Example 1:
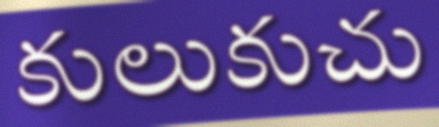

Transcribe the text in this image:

కులుకుచు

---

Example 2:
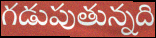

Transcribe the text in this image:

గడుపుతున్నది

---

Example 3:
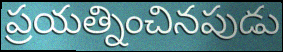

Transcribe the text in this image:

ప్రయత్నించినపుడు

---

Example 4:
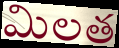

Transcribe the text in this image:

మిలత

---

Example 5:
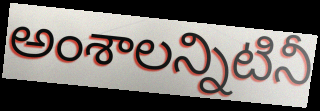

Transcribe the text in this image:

అంశాలన్నిటినీ